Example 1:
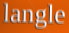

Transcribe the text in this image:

langle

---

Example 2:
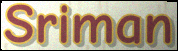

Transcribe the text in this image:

Sriman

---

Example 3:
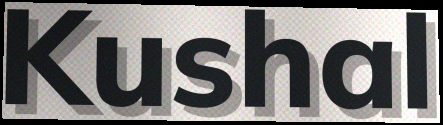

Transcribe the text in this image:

Kushal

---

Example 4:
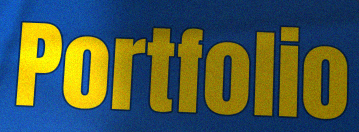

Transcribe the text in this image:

Portfolio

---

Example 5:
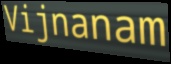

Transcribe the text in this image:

Vijnanam